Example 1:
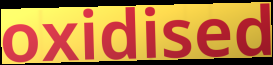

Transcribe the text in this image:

oxidised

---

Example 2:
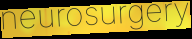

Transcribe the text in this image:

neurosurgery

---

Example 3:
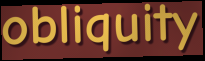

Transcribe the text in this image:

obliquity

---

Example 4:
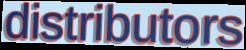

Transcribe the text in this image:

distributors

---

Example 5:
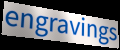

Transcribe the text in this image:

engravings